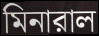
মিনারাল